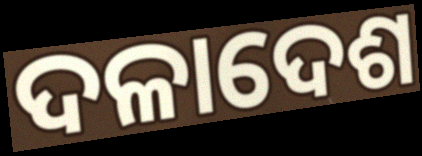
ଦଳାଦେଶ